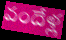
వందేళ్ల